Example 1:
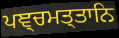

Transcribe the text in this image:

ਪਞ੍ਚਮਤ੍ਤਾਨਿ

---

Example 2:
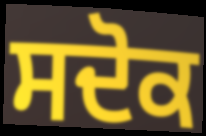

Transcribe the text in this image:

ਸਦੋਕ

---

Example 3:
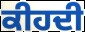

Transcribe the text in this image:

ਕੀਹਦੀ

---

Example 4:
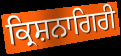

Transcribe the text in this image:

ਕ੍ਰਿਸ਼ਨਾਗਿਰੀ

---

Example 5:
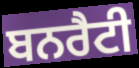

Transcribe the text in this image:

ਬਨਰੈਟੀ